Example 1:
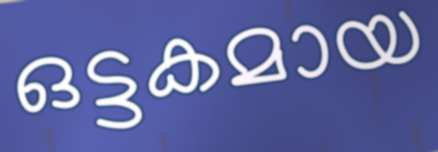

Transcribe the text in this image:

ഒട്ടകമായ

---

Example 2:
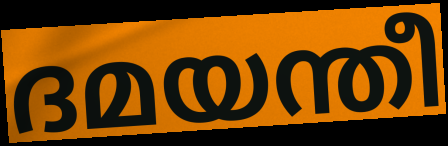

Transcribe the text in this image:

ദമയന്തീ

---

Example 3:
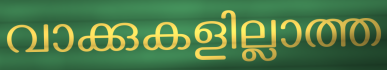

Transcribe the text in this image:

വാക്കുകളില്ലാത്ത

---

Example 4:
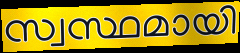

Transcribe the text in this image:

സ്വസ്ഥമായി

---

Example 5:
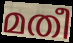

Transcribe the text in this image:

മതീ